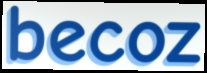
becoz